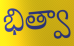
భిత్వా